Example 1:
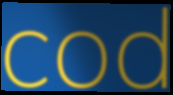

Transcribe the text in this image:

cod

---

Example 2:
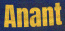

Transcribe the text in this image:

Anant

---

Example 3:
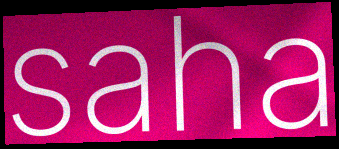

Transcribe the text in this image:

saha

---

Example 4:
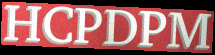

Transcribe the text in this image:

HCPDPM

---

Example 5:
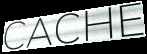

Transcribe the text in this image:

CACHE